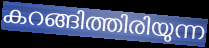
കറങ്ങിത്തിരിയുന്ന